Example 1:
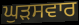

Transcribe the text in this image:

ਘੁੜਸਵਾਰ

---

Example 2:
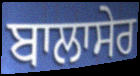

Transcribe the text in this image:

ਬਾਲਾਸੇਰ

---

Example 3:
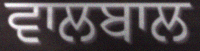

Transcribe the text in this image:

ਵਾਲਬਾਲ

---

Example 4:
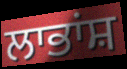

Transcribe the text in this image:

ਲਾਭਾਂਸ਼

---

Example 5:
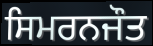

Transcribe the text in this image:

ਸਿਮਰਨਜੌਤ